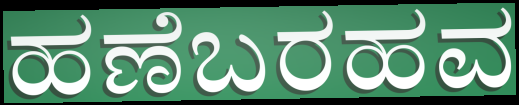
ಹಣೆಬರಹವ